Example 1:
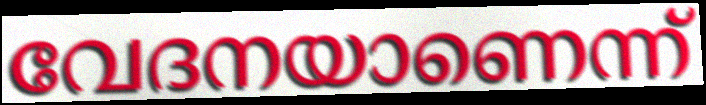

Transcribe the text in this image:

വേദനയാണെന്ന്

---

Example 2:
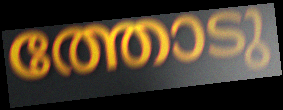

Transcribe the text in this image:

ത്തോടു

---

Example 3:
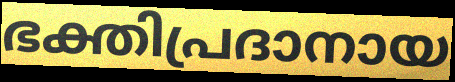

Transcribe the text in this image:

ഭക്തിപ്രദാനായ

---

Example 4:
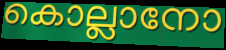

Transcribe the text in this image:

കൊല്ലാനോ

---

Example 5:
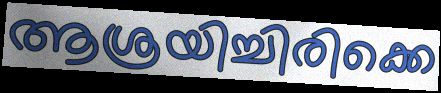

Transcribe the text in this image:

ആശ്രയിച്ചിരിക്കെ